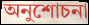
অনুশোচনা